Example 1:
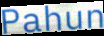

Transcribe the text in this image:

Pahun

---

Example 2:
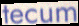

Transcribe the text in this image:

tecum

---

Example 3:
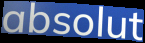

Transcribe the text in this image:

absolut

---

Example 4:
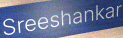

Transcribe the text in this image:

Sreeshankar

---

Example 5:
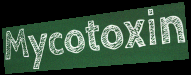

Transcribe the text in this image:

Mycotoxin